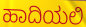
ಹಾದಿಯಲಿ